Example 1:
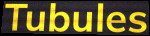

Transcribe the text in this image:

Tubules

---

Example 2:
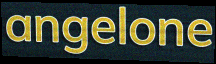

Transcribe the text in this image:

angelone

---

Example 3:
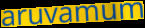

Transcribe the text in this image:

aruvamum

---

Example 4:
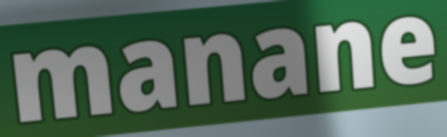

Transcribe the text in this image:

manane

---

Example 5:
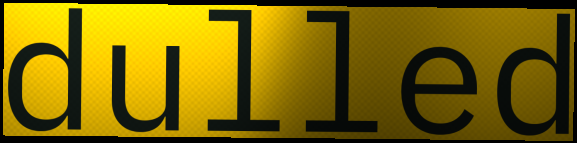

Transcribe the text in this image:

dulled